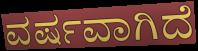
ವರ್ಷವಾಗಿದೆ